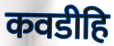
कवडीहि